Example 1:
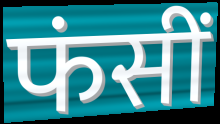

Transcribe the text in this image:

फंसीं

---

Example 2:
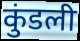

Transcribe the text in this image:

कुंडली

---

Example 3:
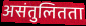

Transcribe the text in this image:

असंतुलितता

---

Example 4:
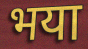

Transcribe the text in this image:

भया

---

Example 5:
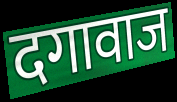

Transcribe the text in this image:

दगावाज